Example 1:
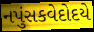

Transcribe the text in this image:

નપુંસકવેદોદયે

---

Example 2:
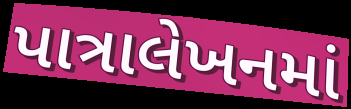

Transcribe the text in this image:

પાત્રાલેખનમાં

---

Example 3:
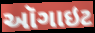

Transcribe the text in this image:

ઑગાઇટ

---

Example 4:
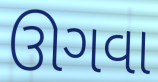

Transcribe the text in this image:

ઊગવા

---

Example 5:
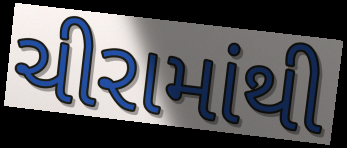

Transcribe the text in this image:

ચીરામાંથી